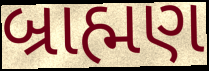
બ્રાહ્મણ